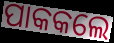
ପାକକଲେ